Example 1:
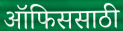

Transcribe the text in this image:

ऑफिससाठी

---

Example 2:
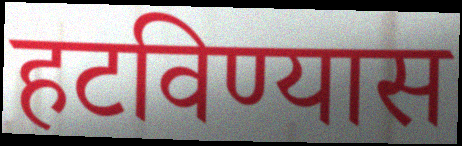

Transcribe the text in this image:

हटविण्यास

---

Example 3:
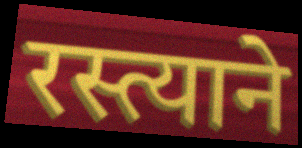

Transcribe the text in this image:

रस्त्याने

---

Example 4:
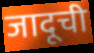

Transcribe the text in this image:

जादूची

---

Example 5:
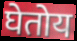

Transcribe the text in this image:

घेतोय